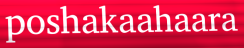
poshakaahaara